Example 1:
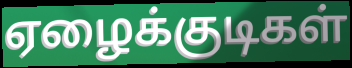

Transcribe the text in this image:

ஏழைக்குடிகள்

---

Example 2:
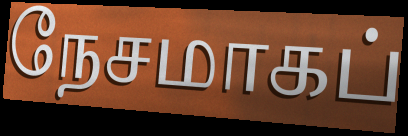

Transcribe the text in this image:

நேசமாகப்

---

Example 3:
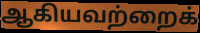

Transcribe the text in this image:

ஆகியவற்றைக்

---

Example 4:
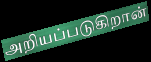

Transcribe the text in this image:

அறியப்படுகிறான்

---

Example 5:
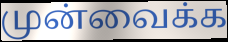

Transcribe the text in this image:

முன்வைக்க